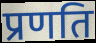
प्रणति